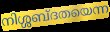
നിശ്ശബ്ദതയെന്ന